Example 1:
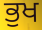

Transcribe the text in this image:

ਭੁਖ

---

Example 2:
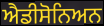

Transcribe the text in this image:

ਐਡੀਸੋਨਿਅਨ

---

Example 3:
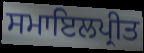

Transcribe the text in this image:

ਸਮਾਇਲਪ੍ਰੀਤ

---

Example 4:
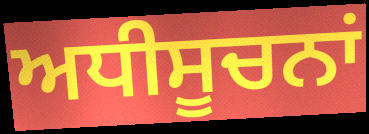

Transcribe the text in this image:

ਅਧੀਸੂਚਨਾਂ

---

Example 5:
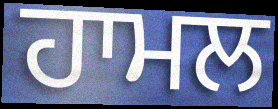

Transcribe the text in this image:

ਹਾਮਲ